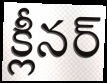
క్లీనర్